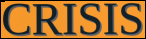
CRISIS